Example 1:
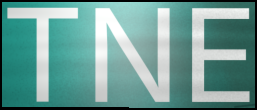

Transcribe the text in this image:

TNE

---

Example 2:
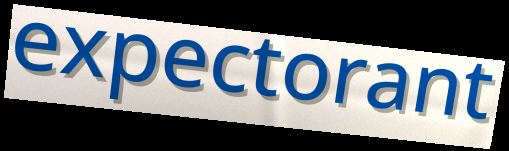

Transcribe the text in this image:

expectorant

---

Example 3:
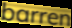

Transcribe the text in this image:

barren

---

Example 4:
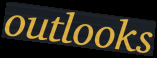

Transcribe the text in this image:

outlooks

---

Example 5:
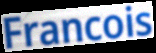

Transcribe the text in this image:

Francois